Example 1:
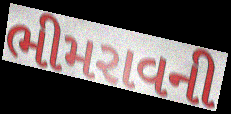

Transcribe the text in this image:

ભીમરાવની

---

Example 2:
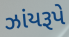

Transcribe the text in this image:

ઝાંયરૂપે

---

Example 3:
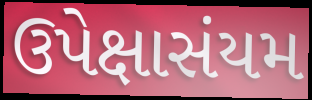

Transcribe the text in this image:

ઉપેક્ષાસંયમ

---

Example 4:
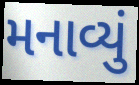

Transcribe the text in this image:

મનાવ્યું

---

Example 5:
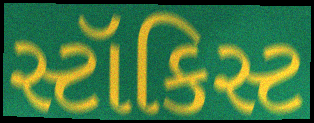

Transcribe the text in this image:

સ્ટૉકિસ્ટ